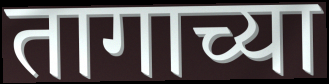
तागाच्या